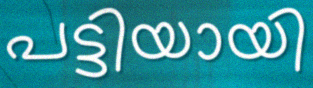
പട്ടിയായി